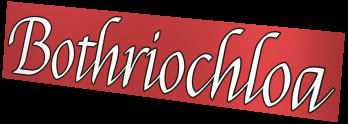
Bothriochloa